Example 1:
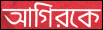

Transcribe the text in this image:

আগিরকে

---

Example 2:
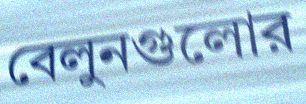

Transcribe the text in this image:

বেলুনগুলোর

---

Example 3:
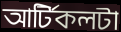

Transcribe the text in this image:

আর্টিকলটা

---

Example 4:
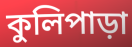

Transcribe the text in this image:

কুলিপাড়া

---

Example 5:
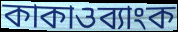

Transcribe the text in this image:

কাকাওব্যাংক